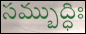
సమ్బుద్ధిః